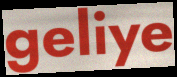
geliye